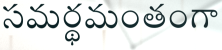
సమర్థమంతంగా